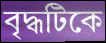
বৃদ্ধটিকে